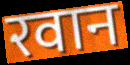
रवान